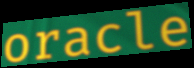
oracle